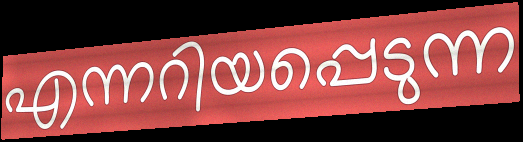
എന്നറിയപ്പെടുന്ന